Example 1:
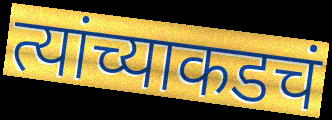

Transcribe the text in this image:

त्यांच्याकडचं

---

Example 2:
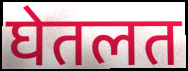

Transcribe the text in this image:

घेतलत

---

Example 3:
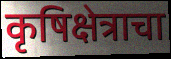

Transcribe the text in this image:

कृषिक्षेत्राचा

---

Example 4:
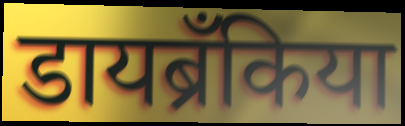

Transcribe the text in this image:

डायब्रँकिया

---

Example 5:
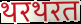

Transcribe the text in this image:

थरथरत